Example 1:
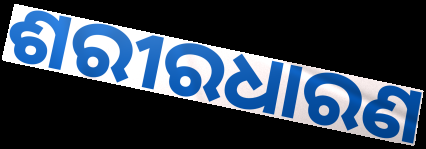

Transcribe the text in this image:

ଶରୀରଧାରଣ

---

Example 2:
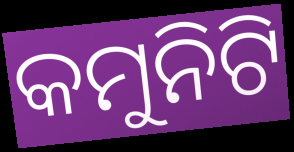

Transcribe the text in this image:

କମୁନିଟି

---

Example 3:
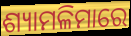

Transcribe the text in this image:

ଶ୍ୟାମଳିମାରେ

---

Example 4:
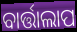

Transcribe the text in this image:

ବାର୍ତ୍ତାଲାପ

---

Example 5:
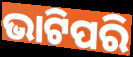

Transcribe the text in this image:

ଭାଟିପରି